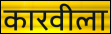
कारवीला